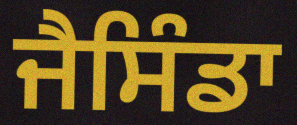
ਜੈਸਿੰਡਾ